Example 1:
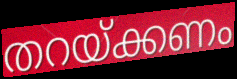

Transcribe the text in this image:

തറയ്ക്കണം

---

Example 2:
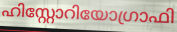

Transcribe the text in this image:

ഹിസ്റ്റോറിയോഗ്രാഫി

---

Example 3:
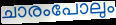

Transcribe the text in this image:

ചാരംപോലും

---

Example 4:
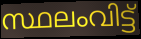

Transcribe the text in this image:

സ്ഥലംവിട്ട്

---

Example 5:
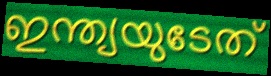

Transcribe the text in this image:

ഇന്ത്യയുടേത്